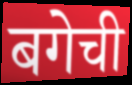
बगेची